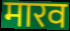
मारव